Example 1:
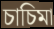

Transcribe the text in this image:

চাচিমা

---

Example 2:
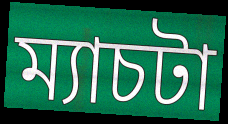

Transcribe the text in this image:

ম্যাচটা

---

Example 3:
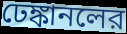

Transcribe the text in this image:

ঢেঙ্কানলের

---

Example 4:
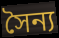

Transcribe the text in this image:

সৈন্য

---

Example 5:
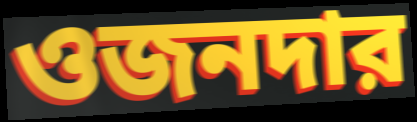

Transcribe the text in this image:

ওজনদার